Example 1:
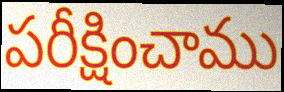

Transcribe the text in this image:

పరీక్షించాము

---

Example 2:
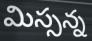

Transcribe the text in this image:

మిస్సన్న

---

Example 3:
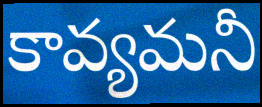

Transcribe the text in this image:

కావ్యమనీ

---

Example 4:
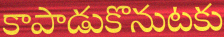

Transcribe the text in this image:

కాపాడుకొనుటకు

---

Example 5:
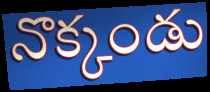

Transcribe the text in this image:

నొక్కండు